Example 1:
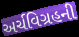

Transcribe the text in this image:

અર્ચવિગ્રહની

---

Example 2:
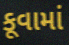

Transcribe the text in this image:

કૂવામાં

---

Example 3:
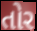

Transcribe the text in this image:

તોર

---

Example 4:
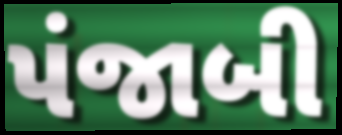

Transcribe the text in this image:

પંજાબી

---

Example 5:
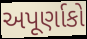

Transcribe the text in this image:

અપૂર્ણાકો